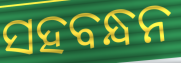
ସହବନ୍ଧନ